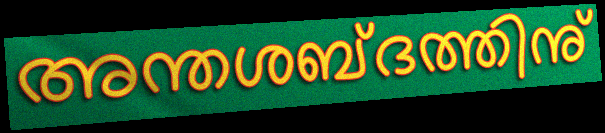
അന്തശബ്ദത്തിനു്